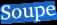
Soupe